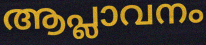
ആപ്ലാവനം